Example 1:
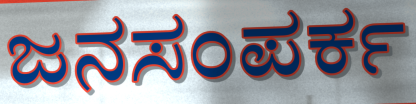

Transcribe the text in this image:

ಜನಸಂಪರ್ಕ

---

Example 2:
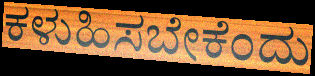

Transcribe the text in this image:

ಕಳುಹಿಸಬೇಕೆಂದು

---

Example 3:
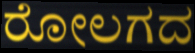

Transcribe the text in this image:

ರೋಲಗದ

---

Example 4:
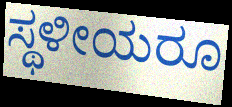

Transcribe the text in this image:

ಸ್ಥಳೀಯರೂ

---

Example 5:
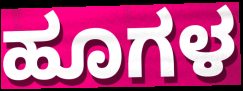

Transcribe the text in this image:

ಹೂಗಳ